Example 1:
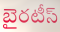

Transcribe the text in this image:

బైరటీస్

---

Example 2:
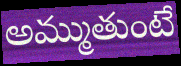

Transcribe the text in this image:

అమ్ముతుంటే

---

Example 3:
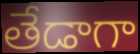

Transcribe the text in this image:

తేడాగా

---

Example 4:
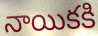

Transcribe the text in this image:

నాయికకి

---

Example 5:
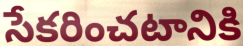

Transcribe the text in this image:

సేకరించటానికి